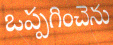
ఒప్పగించెను